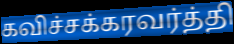
கவிச்சக்கரவர்த்தி